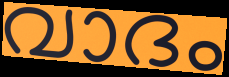
വാദം